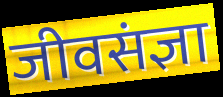
जीवसंज्ञा